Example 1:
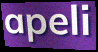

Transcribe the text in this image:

apeli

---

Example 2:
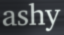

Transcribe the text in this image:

ashy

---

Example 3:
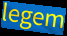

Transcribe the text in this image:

legem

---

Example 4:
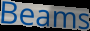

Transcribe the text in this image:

Beams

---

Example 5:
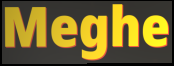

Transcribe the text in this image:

Meghe